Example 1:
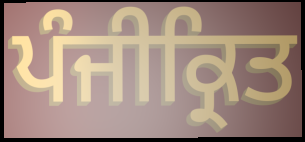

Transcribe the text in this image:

ਪੰਜੀਕ੍ਰਿਤ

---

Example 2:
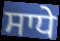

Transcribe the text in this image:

ਸਾਧੇ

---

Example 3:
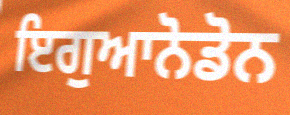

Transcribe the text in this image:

ਇਗੁਆਨੋਡੋਨ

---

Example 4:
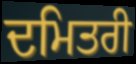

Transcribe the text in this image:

ਦਮਿਤਰੀ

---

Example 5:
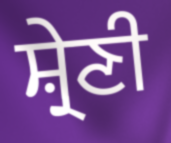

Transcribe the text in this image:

ਸ਼੍ਰੇਣੀ